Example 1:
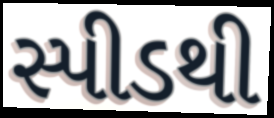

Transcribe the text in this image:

સ્પીડથી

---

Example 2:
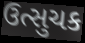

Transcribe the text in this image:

ઉત્સુચક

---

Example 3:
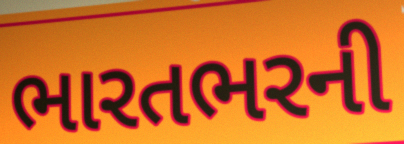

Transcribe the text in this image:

ભારતભરની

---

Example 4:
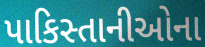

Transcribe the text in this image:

પાકિસ્તાનીઓના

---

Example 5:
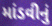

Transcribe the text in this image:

માંડવીનું